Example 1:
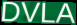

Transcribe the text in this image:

DVLA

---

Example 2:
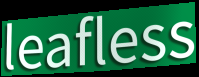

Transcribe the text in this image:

leafless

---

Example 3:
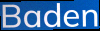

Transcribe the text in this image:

Baden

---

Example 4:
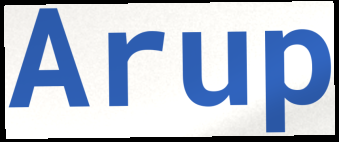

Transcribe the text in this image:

Arup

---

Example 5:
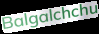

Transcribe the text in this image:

Balgalchchu